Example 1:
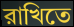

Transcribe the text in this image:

রাখিতে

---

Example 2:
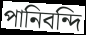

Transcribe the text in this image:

পানিবন্দি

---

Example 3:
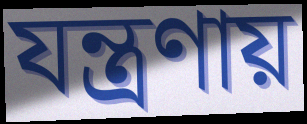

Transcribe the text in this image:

যন্ত্রণায়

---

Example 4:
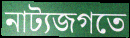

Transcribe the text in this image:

নাট্যজগতে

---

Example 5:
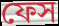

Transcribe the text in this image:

ফেস